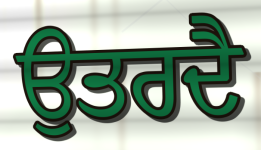
ਉਤਰਦੈ